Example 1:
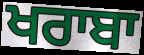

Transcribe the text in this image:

ਖਰਾਬਾ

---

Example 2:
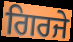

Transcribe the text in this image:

ਗਿਰਜੇ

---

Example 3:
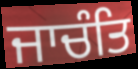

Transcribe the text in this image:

ਜਾਚੰਤਿ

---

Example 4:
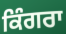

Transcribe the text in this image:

ਕਿੰਗਰਾ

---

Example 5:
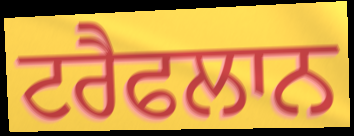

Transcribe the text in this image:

ਟਰੈਫਲਾਨ